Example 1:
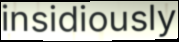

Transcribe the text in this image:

insidiously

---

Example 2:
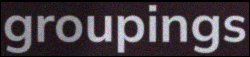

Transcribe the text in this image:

groupings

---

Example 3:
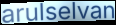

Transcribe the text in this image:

arulselvan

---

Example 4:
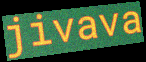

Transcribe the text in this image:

jivava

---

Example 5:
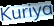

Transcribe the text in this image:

Kuriya